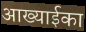
आख्याईका